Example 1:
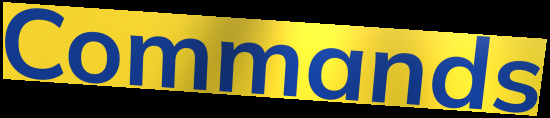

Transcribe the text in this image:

Commands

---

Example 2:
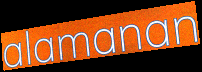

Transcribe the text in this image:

alamanan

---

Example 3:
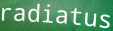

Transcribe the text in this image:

radiatus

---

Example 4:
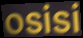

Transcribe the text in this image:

osisi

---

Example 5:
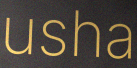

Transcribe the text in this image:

usha